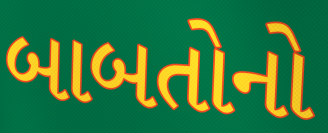
બાબતોનો